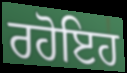
ਰਹੋਇਹ